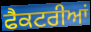
ਫੈਕਟਰੀਆਂ